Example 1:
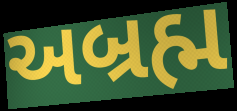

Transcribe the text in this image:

અબ્રહ્મ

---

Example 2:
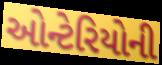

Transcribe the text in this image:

ઓન્ટેરિયોની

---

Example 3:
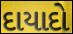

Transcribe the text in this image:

દાયાદો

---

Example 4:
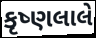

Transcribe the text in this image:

કૃષ્ણલાલે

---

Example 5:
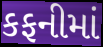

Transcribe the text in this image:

કફનીમાં